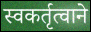
स्वकर्तृत्वाने